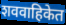
शववाहिकेत